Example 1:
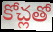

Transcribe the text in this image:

కోచ్లతో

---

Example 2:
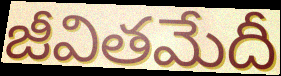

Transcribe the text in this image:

జీవితమేదీ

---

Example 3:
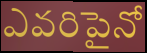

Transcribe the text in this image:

ఎవరిపైనో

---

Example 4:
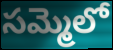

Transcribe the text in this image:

సమ్మెలో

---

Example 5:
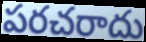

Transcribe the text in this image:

పరచరాదు